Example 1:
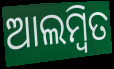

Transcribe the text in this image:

ଆଲମ୍ୱିତ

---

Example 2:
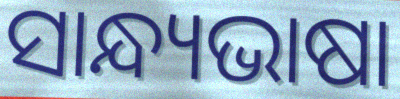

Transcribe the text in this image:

ସାନ୍ଧ୍ୟଭାଷା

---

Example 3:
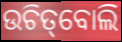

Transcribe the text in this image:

ଉଚିତ୍‌ବୋଲି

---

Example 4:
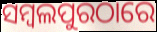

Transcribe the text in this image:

ସମ୍ବଲପୁରଠାରେ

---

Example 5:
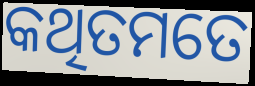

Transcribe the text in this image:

କଥିତମତେ